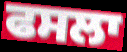
ਫਸਲਾ